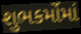
શુભકર્મોમાં